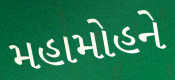
મહામોહને